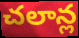
చలాన్ల